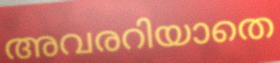
അവരറിയാതെ